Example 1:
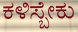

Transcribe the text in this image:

ಕಳಿಸ್ಬೇಕು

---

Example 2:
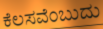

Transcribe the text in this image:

ಕೆಲಸವೆಂಬುದು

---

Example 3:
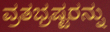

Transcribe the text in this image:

ವ್ರತಭ್ರಷ್ಟರನ್ನು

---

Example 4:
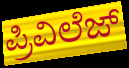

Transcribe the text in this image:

ಪ್ರಿವಿಲೆಜ್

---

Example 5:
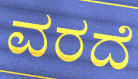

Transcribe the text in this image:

ವರದೆ